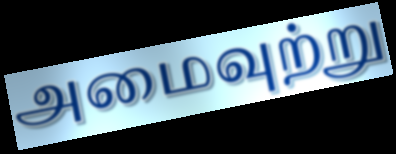
அமைவுற்று